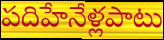
పదిహేనేళ్లపాటు